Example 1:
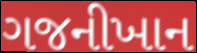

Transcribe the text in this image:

ગજનીખાન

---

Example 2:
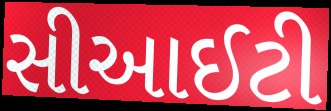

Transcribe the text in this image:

સીઆઈટી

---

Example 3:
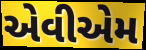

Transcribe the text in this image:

એવીએમ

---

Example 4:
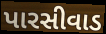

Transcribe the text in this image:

પારસીવાડ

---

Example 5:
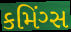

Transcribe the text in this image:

કમિંગ્સ